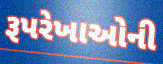
રૂપરેખાઓની